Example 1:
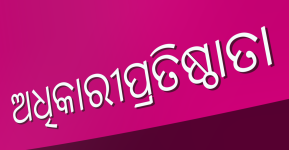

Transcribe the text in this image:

ଅଧିକାରୀପ୍ରତିଷ୍ଠାତା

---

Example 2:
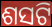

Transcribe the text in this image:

ଶସଟି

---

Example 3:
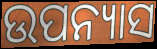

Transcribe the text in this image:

ଉପନ୍ୟାସ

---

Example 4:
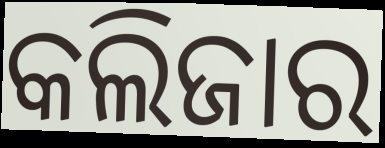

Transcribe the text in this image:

କଲିଜାର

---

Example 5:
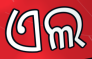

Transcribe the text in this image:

ଏଲ